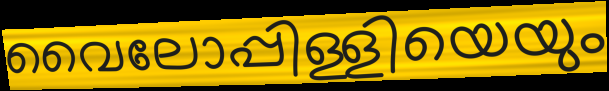
വൈലോപ്പിള്ളിയെയും